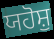
ਯਹੋਸ਼ੁ